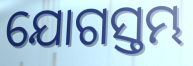
ଯୋଗସ୍ତମ୍ଭ